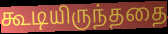
கூடியிருந்ததை